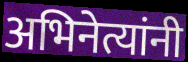
अभिनेत्यांनी